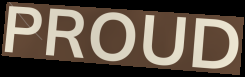
PROUD